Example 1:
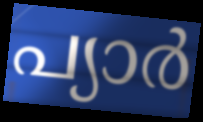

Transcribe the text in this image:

പ്യാർ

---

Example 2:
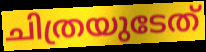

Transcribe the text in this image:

ചിത്രയുടേത്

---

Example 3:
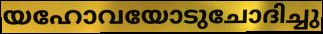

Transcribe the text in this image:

യഹോവയോടുചോദിച്ചു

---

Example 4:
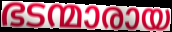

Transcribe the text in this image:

ഭടന്മാരായ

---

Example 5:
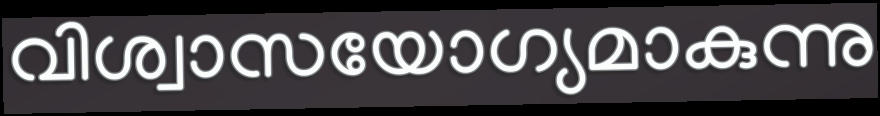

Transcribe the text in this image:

വിശ്വാസയോഗ്യമാകുന്നു